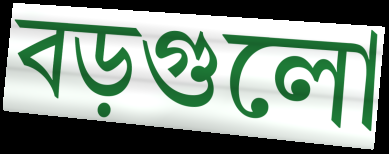
বড়গুলো